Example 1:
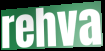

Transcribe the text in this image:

rehva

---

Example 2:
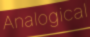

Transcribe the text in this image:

Analogical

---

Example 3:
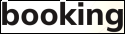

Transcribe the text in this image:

booking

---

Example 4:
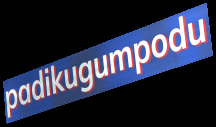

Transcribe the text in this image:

padikugumpodu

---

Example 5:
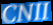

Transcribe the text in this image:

CNII